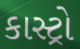
કાસ્ટ્રો